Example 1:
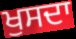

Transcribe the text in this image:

ਖੁਸਦਾ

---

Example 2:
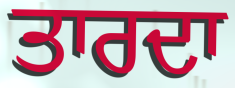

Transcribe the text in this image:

ਤਾਰਦਾ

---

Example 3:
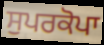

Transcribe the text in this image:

ਸੁਪਰਕੋਪਾ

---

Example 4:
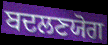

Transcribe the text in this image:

ਬਦਲਣਯੋਗ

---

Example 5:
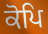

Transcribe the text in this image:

ਕੋਪਿ